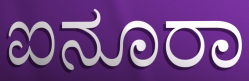
ಐನೂರಾ